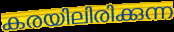
കരയിലിരിക്കുന്ന